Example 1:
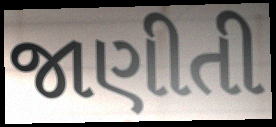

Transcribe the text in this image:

જાણીતી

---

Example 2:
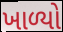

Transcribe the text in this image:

ખાળ્યો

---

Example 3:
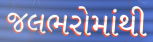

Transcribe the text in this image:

જલભરોમાંથી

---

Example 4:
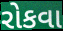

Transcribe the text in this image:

રોકવા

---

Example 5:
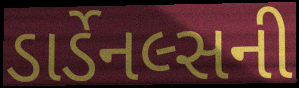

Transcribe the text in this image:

ડાર્ડેનલ્સની